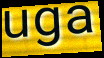
uga